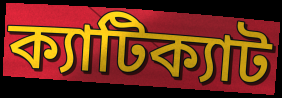
ক্যাটিক্যাট